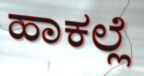
ಹಾಕಲ್ಲೆ